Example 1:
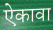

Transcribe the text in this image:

ऐकावा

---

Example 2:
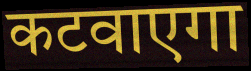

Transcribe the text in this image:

कटवाएगा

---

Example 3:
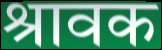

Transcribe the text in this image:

श्रावक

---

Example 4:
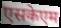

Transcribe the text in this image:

एसकेएम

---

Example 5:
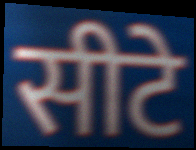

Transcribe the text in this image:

सीटे